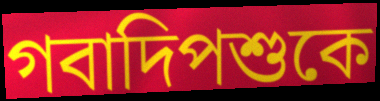
গবাদিপশুকে